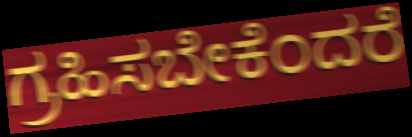
ಗ್ರಹಿಸಬೇಕೆಂದರೆ